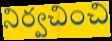
నిర్వచించి